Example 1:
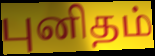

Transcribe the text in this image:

புனிதம்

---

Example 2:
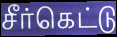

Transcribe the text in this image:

சீர்கெட்டு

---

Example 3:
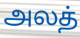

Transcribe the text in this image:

அலத்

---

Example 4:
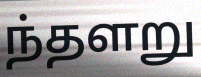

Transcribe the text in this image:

ந்தளறு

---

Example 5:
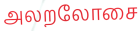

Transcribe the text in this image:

அலறலோசை